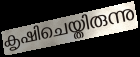
കൃഷിചെയ്തിരുന്നു